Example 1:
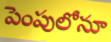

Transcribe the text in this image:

పెంపులోనూ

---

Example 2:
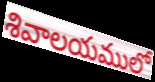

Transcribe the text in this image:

శివాలయములో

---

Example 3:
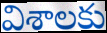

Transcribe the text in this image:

విశాలకు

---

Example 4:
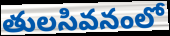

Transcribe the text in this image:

తులసివనంలో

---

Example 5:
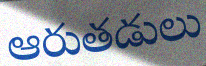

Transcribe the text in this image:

ఆరుతడులు